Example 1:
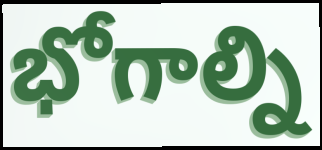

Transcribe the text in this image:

భోగాల్ని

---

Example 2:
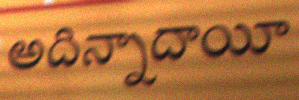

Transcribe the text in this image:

అదిన్నాదాయీ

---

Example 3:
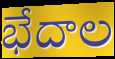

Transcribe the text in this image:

భేదాల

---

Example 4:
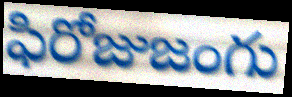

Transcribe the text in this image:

ఫిరోజుజంగు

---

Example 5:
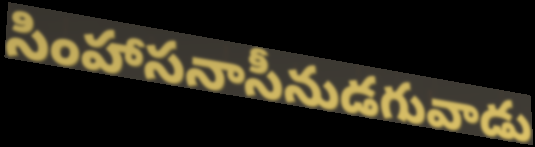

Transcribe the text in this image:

సింహాసనాసీనుడగువాడు